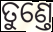
ତୁଣ୍ତେ